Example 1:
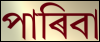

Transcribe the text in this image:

পাৰিবা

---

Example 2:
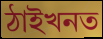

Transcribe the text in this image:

ঠাইখনত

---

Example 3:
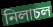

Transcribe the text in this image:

নিলাচল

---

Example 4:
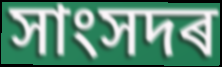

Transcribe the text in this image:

সাংসদৰ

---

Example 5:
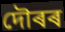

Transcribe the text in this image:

দৌৰৰ